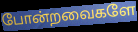
போன்றவைகளே